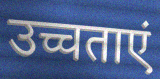
उच्चताएं